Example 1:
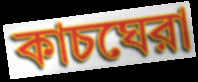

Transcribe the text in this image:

কাচঘেরা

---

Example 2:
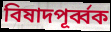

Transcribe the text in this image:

বিষাদপূর্ব্বক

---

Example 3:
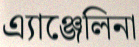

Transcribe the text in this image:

এ্যাঞ্জেলিনা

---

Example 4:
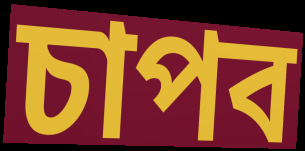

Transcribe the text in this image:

চাপব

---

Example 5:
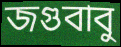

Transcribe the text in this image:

জগুবাবু